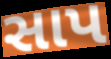
સાપ